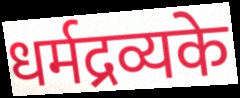
धर्मद्रव्यके